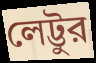
লেট্টুর